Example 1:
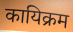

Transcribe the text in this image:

कायिक्रम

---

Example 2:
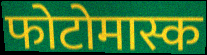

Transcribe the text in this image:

फोटोमास्क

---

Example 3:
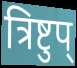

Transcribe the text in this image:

त्रिष्टुप्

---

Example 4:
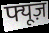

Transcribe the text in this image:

फ्यूज़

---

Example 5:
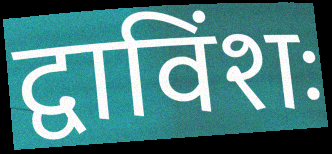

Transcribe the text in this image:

द्वाविंशः